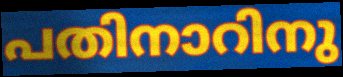
പതിനാറിനു